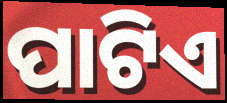
ପାଟିଏ